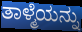
ತಾಳ್ಮೆಯನ್ನು